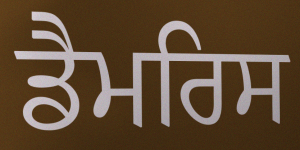
ਡੈਮਰਿਸ